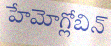
హేమోగ్లోబిన్